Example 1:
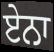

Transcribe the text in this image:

ਏਨਾ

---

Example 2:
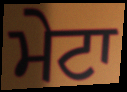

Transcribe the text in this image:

ਮੇਟਾ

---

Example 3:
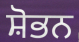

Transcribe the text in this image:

ਸ਼ੋਭਨ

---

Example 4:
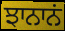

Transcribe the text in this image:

ਝਾਨਾਨਂ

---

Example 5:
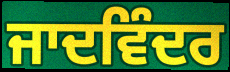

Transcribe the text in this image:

ਜਾਦਵਿੰਦਰ